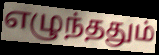
எழுந்ததும்